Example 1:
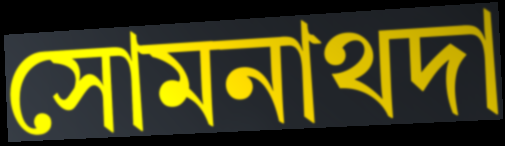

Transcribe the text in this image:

সোমনাথদা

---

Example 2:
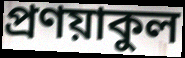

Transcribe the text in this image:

প্রণয়াকুল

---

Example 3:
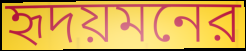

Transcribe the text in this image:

হৃদয়মনের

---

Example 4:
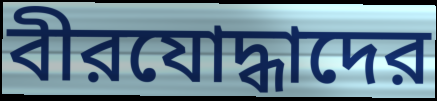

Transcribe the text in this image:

বীরযোদ্ধাদের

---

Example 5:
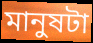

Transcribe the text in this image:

মানুষটা